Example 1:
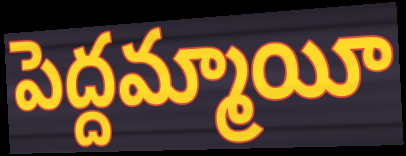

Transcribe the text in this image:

పెద్దమ్మాయీ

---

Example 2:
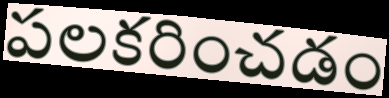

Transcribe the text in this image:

పలకరించడం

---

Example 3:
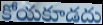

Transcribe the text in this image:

కోయకూడదు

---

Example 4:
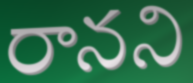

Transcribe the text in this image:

రానని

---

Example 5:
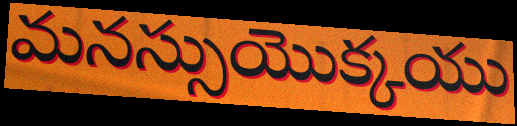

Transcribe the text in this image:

మనస్సుయొక్కయు